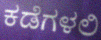
ಕಡೆಗಳಲಿ